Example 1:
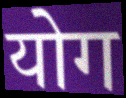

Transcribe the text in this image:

योग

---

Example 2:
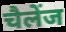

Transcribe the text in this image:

चैलेंज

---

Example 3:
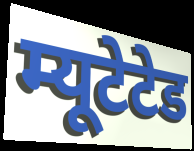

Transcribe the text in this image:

म्यूटेटेड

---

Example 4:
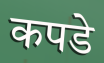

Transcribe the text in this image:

कपडे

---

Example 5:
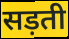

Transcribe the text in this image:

सड़ती